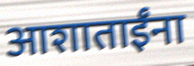
आशाताईंना